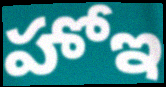
హోఇ